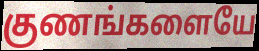
குணங்களையே